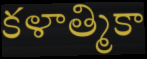
కళాత్మికా